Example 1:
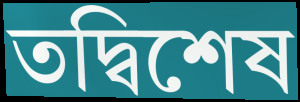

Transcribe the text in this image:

তদ্বিশেষ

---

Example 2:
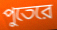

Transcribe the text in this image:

পুতেরে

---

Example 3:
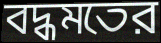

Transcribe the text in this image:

বদ্ধমতের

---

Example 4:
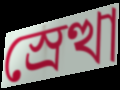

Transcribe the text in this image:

স্রেত্থা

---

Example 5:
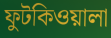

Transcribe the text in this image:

ফুটকিওয়ালা